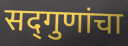
सद्‍गुणांचा